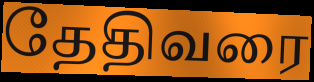
தேதிவரை